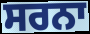
ਸਰਨਾ